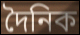
দৈনিক